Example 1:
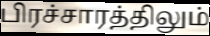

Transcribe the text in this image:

பிரச்சாரத்திலும்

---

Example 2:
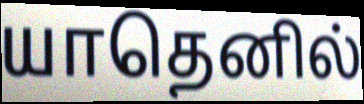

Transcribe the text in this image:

யாதெனில்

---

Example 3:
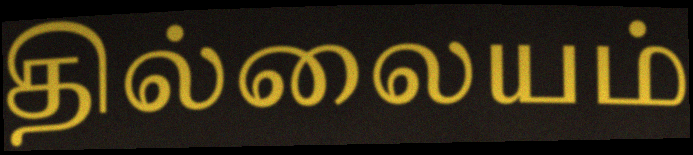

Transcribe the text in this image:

தில்லையம்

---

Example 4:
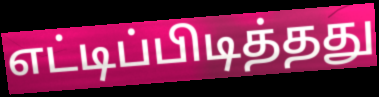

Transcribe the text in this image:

எட்டிப்பிடித்தது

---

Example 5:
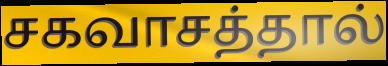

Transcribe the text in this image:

சகவாசத்தால்